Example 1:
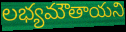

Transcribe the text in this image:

లభ్యమౌతాయని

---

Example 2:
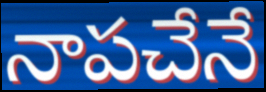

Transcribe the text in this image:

నాపచేనే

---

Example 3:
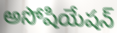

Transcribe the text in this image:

అసోషియేషన్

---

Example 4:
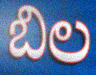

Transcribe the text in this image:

బిల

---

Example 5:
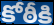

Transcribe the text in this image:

కోఠీకి